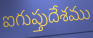
ఐగుప్తుదేశము